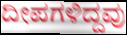
ದೀಪಗಳಿದ್ದವು